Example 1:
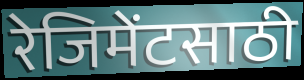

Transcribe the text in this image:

रेजिमेंटसाठी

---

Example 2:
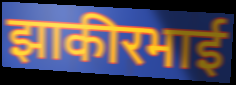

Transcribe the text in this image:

झाकीरभाई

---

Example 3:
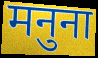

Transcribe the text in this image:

मनुना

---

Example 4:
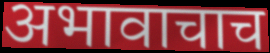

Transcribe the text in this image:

अभावाचाच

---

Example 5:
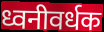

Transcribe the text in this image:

ध्वनीवर्धक